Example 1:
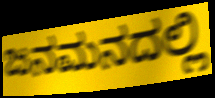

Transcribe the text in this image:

ಜನಮನದಲ್ಲಿ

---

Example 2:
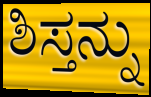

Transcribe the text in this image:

ಶಿಸ್ತನ್ನು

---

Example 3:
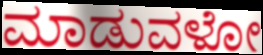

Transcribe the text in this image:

ಮಾಡುವಳೋ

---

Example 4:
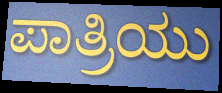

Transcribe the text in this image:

ಪಾತ್ರಿಯು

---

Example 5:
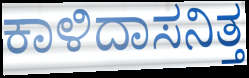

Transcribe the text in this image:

ಕಾಳಿದಾಸನಿತ್ತ